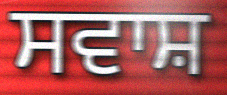
ਸਵਾਸ਼